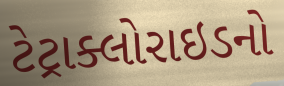
ટેટ્રાક્લોરાઇડનો